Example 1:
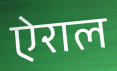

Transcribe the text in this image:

ऐराल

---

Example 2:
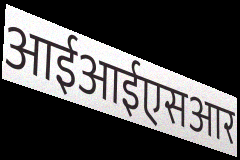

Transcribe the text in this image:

आईआईएसआर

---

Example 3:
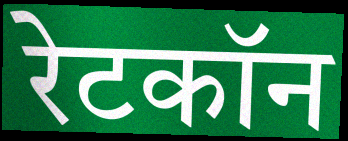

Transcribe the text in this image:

रेटकॉन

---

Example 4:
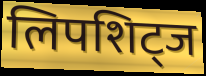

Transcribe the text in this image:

लिपशिट्ज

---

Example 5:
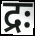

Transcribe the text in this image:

द्रः